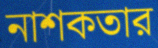
নাশকতার